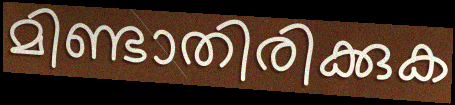
മിണ്ടാതിരിക്കുക